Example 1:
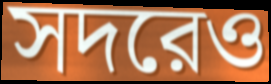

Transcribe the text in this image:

সদরেও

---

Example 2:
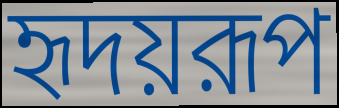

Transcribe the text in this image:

হৃদয়রূপ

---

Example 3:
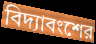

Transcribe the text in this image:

বিদ্যাবংশের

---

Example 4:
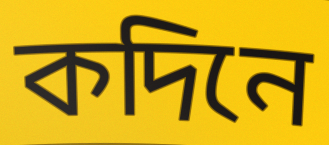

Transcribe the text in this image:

কদিনে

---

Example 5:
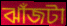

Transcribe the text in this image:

ঝাঁজটা